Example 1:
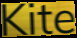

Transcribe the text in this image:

Kite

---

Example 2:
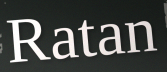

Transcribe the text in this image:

Ratan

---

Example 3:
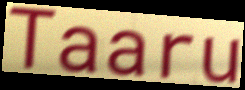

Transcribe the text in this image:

Taaru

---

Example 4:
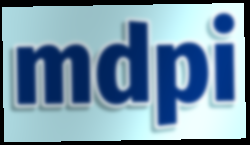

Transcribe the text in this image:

mdpi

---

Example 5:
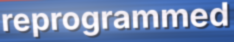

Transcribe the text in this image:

reprogrammed